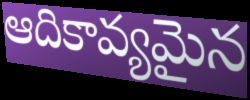
ఆదికావ్యమైన